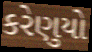
કરેણુયો